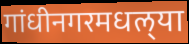
गांधीनगरमधल्या